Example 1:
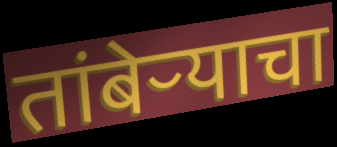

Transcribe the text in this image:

तांबेऱ्याचा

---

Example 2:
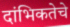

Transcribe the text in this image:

दांभिकतेचे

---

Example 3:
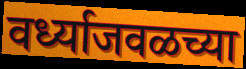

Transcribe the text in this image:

वर्ध्याजवळच्या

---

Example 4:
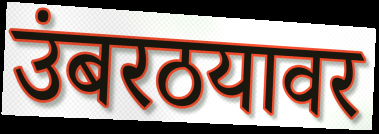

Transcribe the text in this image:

उंबरठयावर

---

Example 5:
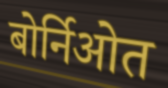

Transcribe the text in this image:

बोर्निओत